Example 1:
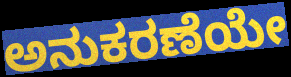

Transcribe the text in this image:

ಅನುಕರಣೆಯೇ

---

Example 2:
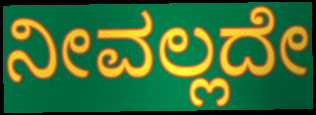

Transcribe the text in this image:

ನೀವಲ್ಲದೇ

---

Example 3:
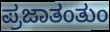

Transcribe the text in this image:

ಪ್ರಜಾತಂತುಂ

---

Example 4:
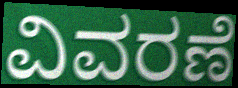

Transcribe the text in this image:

ವಿವರಣೆ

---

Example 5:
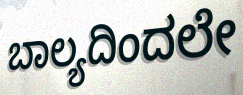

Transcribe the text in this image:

ಬಾಲ್ಯದಿಂದಲೇ